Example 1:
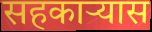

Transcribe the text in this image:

सहकार्‍यास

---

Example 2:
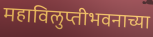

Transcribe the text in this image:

महाविलुप्तीभवनाच्या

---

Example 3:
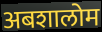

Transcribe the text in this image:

अबशालोम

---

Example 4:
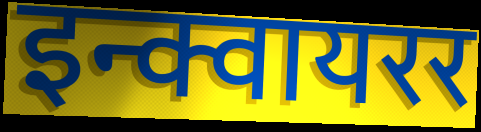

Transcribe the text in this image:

इन्क्वायरर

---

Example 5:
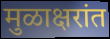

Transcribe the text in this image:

मुळाक्षरांत